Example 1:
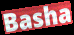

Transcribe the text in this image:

Basha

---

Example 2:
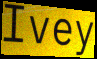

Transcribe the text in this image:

Ivey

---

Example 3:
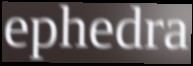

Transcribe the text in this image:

ephedra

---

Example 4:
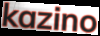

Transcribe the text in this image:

kazino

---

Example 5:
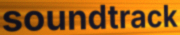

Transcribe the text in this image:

soundtrack